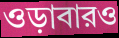
ওড়াবারও